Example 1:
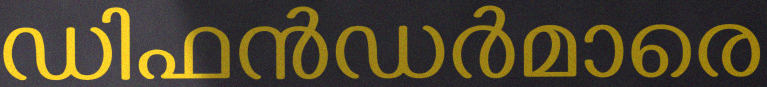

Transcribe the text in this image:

ഡിഫൻഡർമാരെ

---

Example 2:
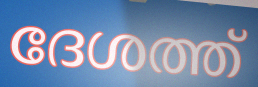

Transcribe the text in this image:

ദേശത്ത്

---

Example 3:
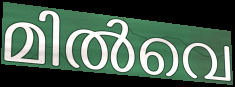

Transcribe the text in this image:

മിൽവെ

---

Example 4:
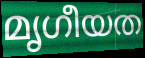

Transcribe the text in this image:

മൃഗീയത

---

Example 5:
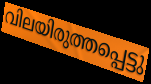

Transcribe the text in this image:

വിലയിരുത്തപ്പെട്ടു